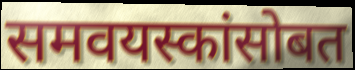
समवयस्कांसोबत